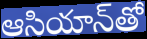
ఆసియాన్‌తో